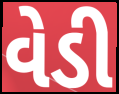
વેડી